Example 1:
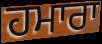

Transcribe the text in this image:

ਹਮਾਰਾ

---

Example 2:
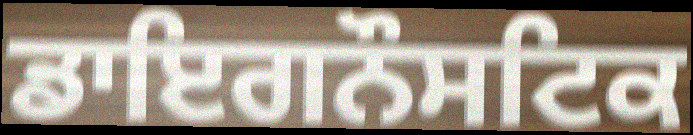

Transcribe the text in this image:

ਡਾਇਗਨੌਸਟਿਕ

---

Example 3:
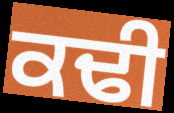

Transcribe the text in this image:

ਕਢੀ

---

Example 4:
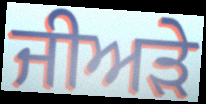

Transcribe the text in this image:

ਜੀਅੜੇ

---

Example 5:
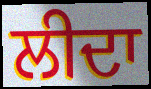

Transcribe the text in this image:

ਲੀਦਾ